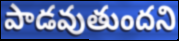
పాడవుతుందని